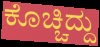
ಕೊಚ್ಚಿದ್ದು